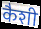
कैशी